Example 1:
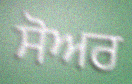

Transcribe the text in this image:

ਸੋਅਰ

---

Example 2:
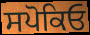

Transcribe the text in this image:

ਸਪੋਕਿਓ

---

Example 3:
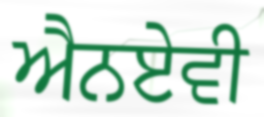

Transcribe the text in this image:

ਐਨਏਵੀ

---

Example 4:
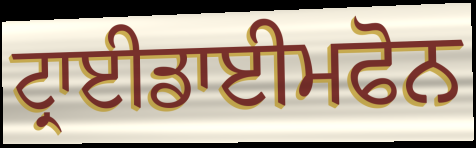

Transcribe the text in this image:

ਟ੍ਰਾਈਡਾਈਮਫੋਨ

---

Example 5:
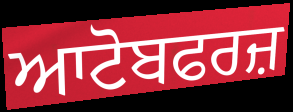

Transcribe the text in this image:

ਆਟੋਬਫਰਜ਼